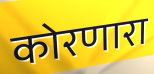
कोरणारा